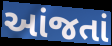
આંજતાં